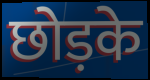
छोड़के